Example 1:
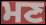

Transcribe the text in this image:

ਮਣ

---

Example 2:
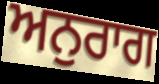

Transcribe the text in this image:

ਅਨੁਰਾਗ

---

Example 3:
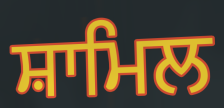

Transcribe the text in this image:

ਸ਼ਾਮਿਲ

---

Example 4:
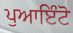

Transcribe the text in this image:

ਪੁਆਇੰਟੋ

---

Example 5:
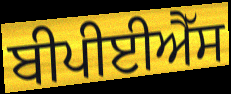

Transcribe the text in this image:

ਬੀਪੀਈਐੱਸ